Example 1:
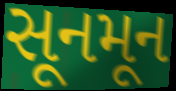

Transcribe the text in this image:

સૂનમૂન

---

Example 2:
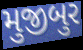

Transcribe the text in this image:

મુજીબુર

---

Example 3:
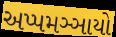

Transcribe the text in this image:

અપ્પમઞ્ઞાયો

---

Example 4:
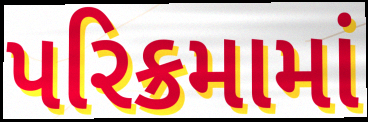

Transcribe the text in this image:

પરિક્રમામાં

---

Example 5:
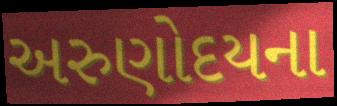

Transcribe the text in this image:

અરુણોદયના